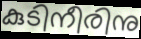
കുടിനീരിനു